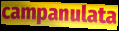
campanulata